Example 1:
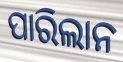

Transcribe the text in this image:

ପାରିଲାନ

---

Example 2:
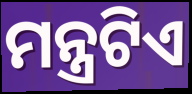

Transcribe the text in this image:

ମନ୍ତ୍ରଟିଏ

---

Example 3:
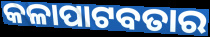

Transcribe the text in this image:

କଳାପାଟବତାର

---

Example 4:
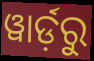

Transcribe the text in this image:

ୱାର୍ଡ଼ରୁ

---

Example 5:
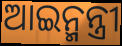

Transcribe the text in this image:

ଆଇନ୍ମନ୍ତ୍ରୀ